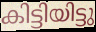
കിട്ടിയിട്ടു